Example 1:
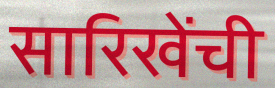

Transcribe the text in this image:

सारिखेंची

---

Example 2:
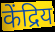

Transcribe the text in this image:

केंद्रिय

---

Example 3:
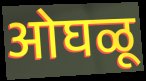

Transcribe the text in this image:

ओघळू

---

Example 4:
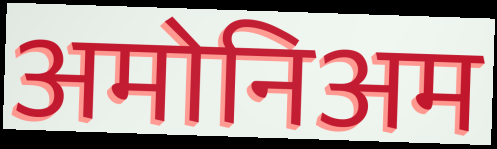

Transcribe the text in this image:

अमोनिअम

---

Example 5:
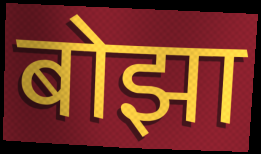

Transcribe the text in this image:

बोझा